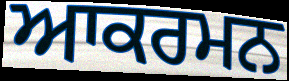
ਆਕਰਮਨ